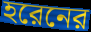
হরেনের